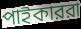
পাইকাররা